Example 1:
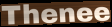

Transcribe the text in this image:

Thenee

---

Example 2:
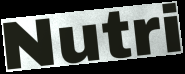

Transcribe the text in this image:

Nutri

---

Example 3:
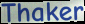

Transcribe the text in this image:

Thaker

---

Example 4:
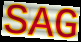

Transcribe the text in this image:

SAG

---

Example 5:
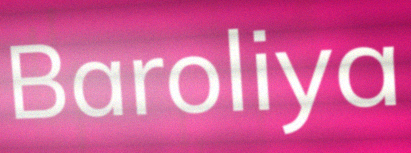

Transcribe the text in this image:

Baroliya